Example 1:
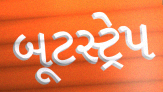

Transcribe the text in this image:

બૂટસ્ટ્રેપ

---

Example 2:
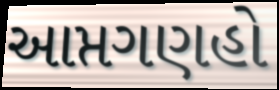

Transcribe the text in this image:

આપ્તગણહો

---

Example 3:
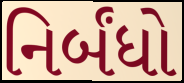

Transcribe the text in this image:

નિર્બંધો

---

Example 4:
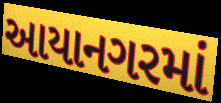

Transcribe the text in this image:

આયાનગરમાં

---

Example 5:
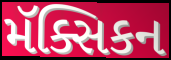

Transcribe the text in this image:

મૅક્સિકન